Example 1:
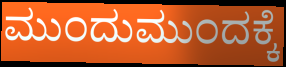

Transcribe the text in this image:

ಮುಂದುಮುಂದಕ್ಕೆ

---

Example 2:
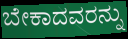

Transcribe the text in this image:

ಬೇಕಾದವರನ್ನು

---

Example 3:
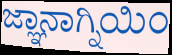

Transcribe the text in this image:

ಜ್ಞಾನಾಗ್ನಿಯಿಂ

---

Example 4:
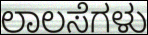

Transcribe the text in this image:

ಲಾಲಸೆಗಳು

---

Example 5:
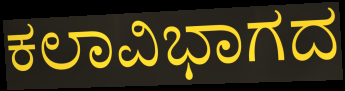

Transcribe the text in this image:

ಕಲಾವಿಭಾಗದ